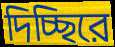
দিচ্ছিরে